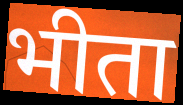
भीता